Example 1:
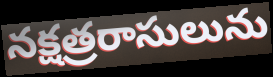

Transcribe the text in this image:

నక్షత్రరాసులును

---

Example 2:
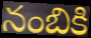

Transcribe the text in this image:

నంబికి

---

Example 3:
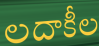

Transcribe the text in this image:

లదాకీల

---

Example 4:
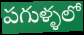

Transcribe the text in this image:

పగుళ్ళలో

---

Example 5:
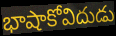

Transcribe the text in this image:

భాషాకోవిదుడు